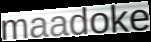
maadoke